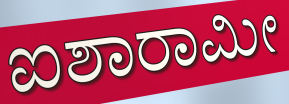
ಐಶಾರಾಮೀ